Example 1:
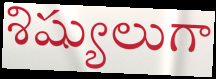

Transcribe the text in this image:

శిష్యులుగా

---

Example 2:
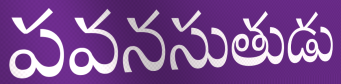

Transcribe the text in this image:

పవనసుతుడు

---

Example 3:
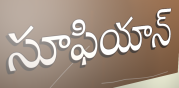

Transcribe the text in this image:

సూఫియాన్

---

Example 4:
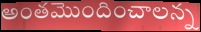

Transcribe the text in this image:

అంతమొందించాలన్న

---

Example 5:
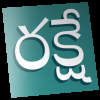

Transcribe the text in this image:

రక్షే